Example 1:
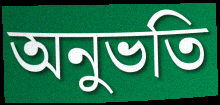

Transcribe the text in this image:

অনুভতি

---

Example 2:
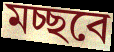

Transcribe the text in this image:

মচ্ছবে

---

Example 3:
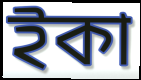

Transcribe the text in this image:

ইকা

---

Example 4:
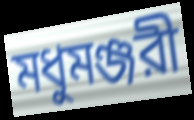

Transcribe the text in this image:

মধুমঞ্জরী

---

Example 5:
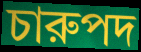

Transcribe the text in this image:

চারুপদ